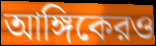
আঙ্গিকেরও